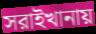
সরাইখানায়